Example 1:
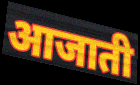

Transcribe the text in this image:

आजाती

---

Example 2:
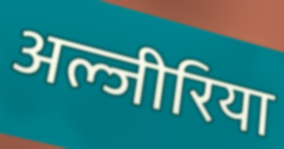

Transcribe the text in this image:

अल्जीरिया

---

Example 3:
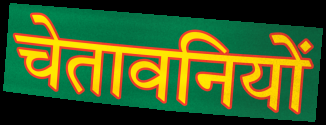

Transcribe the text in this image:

चेतावनियों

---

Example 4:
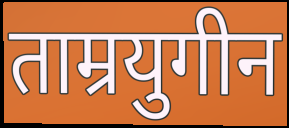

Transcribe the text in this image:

ताम्रयुगीन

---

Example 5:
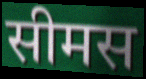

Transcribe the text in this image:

सीमस